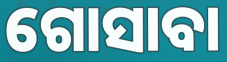
ଗୋସାବା